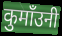
कुमाँउनी